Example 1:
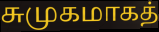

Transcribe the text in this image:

சுமுகமாகத்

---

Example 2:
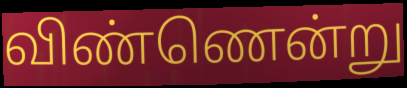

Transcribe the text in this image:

விண்ணென்று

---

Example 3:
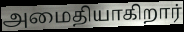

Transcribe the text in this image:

அமைதியாகிறார்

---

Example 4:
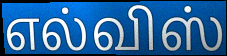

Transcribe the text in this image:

எல்விஸ்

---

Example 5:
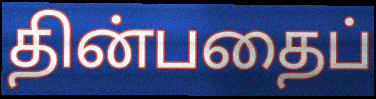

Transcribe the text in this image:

தின்பதைப்